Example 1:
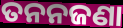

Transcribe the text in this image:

ତନନଜଣା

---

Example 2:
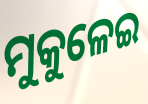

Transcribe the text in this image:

ମୁକୁଳେଇ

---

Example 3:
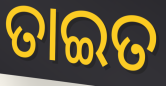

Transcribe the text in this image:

ତାଇତ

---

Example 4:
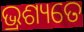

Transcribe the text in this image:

ଭ୍ରଶ୍ୟତେ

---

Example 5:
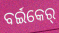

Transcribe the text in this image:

ବର୍ଇକେର୍